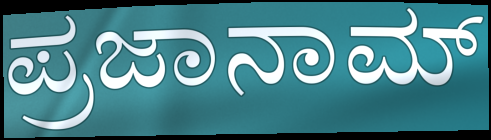
ಪ್ರಜಾನಾಮ್